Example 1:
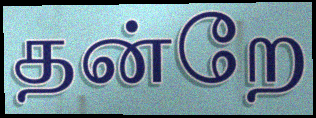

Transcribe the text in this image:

தன்றே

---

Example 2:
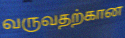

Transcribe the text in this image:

வருவதற்கான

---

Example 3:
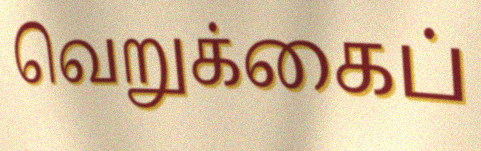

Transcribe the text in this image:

வெறுக்கைப்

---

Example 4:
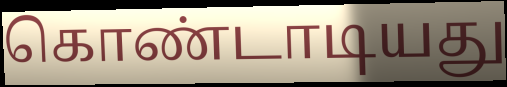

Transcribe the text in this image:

கொண்டாடியது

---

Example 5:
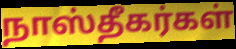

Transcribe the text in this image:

நாஸ்தீகர்கள்